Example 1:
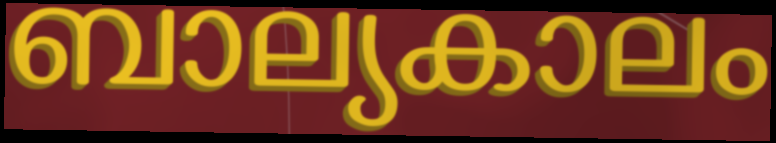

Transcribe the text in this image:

ബാല്യകാലം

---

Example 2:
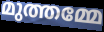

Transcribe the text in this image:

മുത്തമ്മേ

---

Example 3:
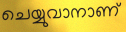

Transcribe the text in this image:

ചെയ്യുവാനാണ്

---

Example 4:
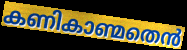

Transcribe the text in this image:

കണികാണ്മതെൻ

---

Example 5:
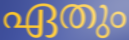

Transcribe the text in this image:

ഏതും